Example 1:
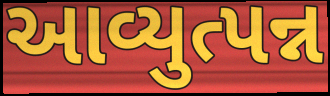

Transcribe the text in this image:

આવ્યુત્પન્ન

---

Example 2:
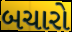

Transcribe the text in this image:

બચારો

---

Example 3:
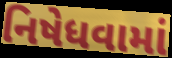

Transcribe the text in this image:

નિષેધવામાં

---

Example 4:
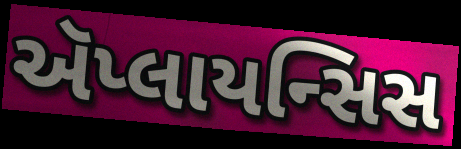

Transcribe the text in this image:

ઍપ્લાયન્સિસ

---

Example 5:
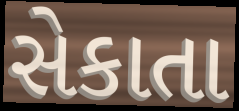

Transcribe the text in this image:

સેકાતા